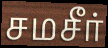
சமசீர்